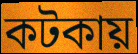
কটকায়